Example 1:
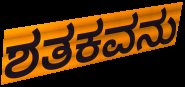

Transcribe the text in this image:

ಶತಕವನು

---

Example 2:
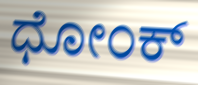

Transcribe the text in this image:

ಧೋಂಕ್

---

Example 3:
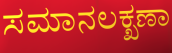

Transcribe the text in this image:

ಸಮಾನಲಕ್ಖಣಾ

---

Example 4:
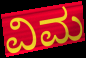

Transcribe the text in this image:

ವಿಮ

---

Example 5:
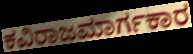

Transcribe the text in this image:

ಕವಿರಾಜಮಾರ್ಗಕಾರ